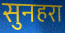
सुनहरा